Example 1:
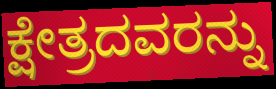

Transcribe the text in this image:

ಕ್ಷೇತ್ರದವರನ್ನು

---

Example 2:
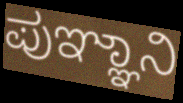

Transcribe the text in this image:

ಪುಞ್ಞಾನಿ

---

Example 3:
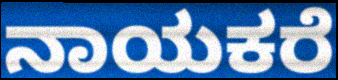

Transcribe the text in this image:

ನಾಯಕರೆ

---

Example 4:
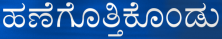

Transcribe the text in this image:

ಹಣೆಗೊತ್ತಿಕೊಂಡು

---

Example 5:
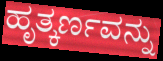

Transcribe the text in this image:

ಹೃತ್ಕರ್ಣವನ್ನು